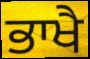
ਭਾਖੈ